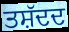
ਤਸ਼ੱਦਦ